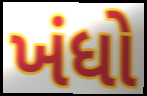
ખંધો